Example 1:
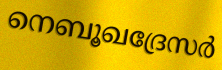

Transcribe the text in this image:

നെബൂഖദ്രേസർ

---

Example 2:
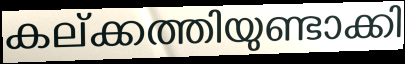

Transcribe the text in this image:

കല്ക്കത്തിയുണ്ടാക്കി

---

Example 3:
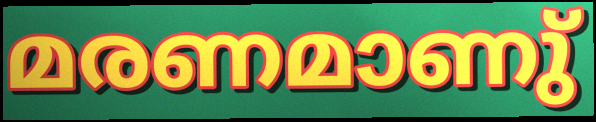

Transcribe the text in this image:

മരണമാണു്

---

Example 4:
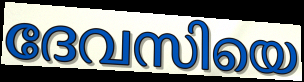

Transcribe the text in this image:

ദേവസിയെ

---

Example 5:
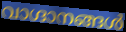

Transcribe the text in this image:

വാഗ്ദാനങ്ങൾ